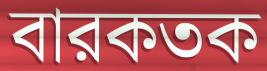
বারকতক